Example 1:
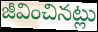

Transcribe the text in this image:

జీవించినట్లు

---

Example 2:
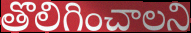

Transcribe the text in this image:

తొలిగించాలని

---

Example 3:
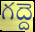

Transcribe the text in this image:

గద్దె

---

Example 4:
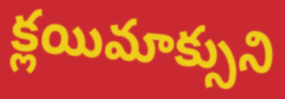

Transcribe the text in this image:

క్లయిమాక్సుని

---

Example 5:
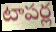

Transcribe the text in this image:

టాపర్ల